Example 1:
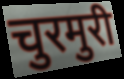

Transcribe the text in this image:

चुरमुरी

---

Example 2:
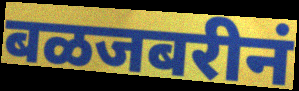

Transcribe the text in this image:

बळजबरीनं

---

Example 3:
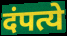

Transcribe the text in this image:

दंपत्ये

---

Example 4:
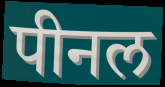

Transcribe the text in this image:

पीनल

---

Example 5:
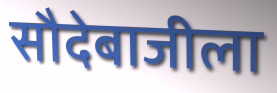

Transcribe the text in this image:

सौदेबाजीला